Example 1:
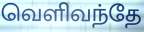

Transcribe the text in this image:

வெளிவந்தே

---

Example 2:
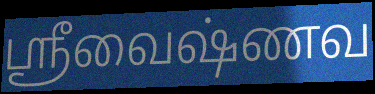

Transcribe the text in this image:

ஸ்ரீவைஷ்ணவ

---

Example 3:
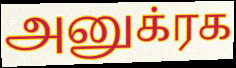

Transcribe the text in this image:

அனுக்ரக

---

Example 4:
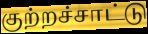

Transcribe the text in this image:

குற்றச்சாட்டு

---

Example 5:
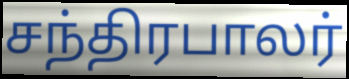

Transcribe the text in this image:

சந்திரபாலர்